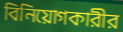
বিনিয়োগকারীর